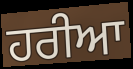
ਹਰੀਆ